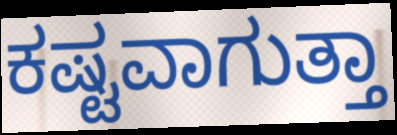
ಕಷ್ಟವಾಗುತ್ತಾ